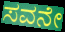
ಸವನೇ